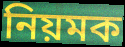
নিয়মক